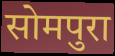
सोमपुरा